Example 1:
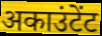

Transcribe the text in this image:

अकाउंटेंट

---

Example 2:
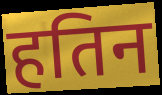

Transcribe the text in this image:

हतिन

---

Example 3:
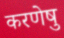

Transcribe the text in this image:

करणेषु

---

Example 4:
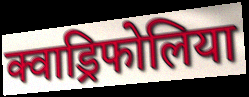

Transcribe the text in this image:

क्वाड्रिफोलिया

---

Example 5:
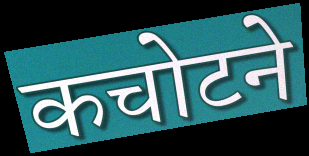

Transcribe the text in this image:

कचोटने